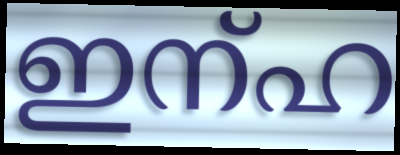
ഇന്ഹ